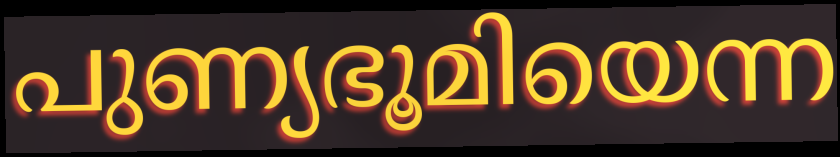
പുണ്യഭൂമിയെന്ന